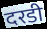
दरडी